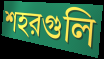
শহরগুলি